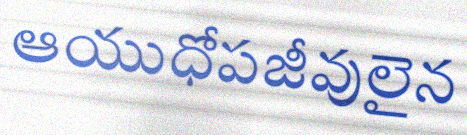
ఆయుధోపజీవులైన